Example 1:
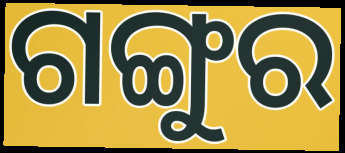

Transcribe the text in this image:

ଗଙ୍ଗୁର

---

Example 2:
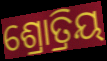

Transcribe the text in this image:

ଶ୍ରୋତ୍ରିୟ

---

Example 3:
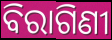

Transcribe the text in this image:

ବିରାଗିଣୀ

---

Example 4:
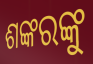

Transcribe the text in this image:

ଶଙ୍କରଙ୍କୁ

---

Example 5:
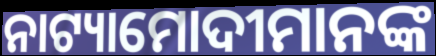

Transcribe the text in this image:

ନାଟ୍ୟାମୋଦୀମାନଙ୍କ